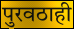
पुरवठाही